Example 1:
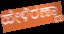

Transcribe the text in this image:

ಹೇಳಿರಣ್ಣಾ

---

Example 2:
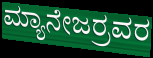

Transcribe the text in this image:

ಮ್ಯಾನೇಜರ್ರವರ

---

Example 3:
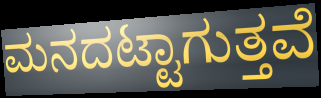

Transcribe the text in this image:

ಮನದಟ್ಟಾಗುತ್ತವೆ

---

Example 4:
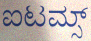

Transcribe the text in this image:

ಐಟಮ್ಸ್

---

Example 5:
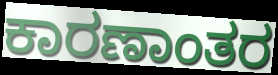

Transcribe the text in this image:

ಕಾರಣಾಂತರ